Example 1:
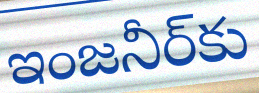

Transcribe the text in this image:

ఇంజనీర్‌కు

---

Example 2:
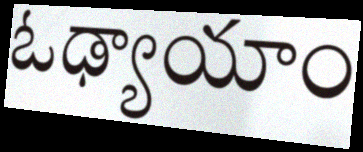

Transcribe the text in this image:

ఓఢ్యాయాం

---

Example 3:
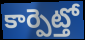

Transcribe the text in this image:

కార్పెట్తో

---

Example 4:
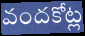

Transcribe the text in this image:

వందకోట్ల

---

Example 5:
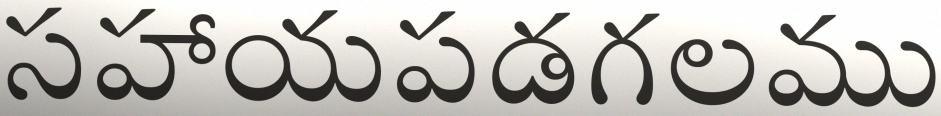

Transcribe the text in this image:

సహాయపడగలము